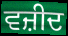
ਵਜ਼ੀਦ